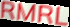
RMRL